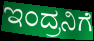
ಇಂದ್ರನಿಗೆ